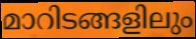
മാറിടങ്ങളിലും